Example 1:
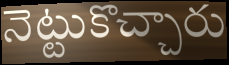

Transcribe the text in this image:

నెట్టుకొచ్చారు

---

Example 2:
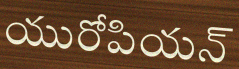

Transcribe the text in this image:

యురోపియన్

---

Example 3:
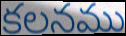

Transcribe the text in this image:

కలనము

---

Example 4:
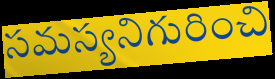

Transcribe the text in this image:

సమస్యనిగురించి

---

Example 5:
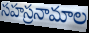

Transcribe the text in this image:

సహస్రనామాల